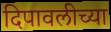
दिपावलीच्या